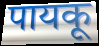
पायकू